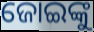
ଜୋଇଙ୍କୁ